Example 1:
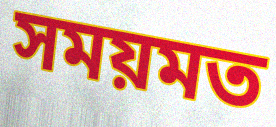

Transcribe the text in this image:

সময়মত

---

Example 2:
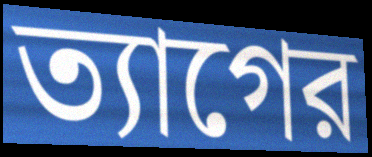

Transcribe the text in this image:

ত্যাগের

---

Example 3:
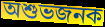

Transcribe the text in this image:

অশুভজনক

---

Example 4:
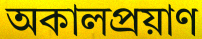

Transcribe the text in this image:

অকালপ্রয়াণ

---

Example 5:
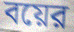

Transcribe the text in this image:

বয়ের